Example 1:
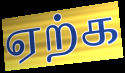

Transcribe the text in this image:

ஏற்க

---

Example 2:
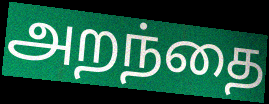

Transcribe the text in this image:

அறந்தை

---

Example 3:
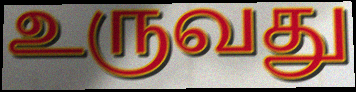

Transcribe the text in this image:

உருவது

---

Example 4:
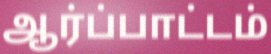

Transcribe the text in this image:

ஆர்ப்பாட்டம்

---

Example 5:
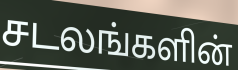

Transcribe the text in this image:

சடலங்களின்